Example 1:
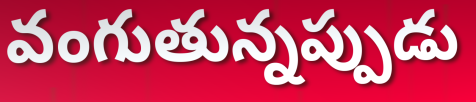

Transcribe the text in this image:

వంగుతున్నప్పుడు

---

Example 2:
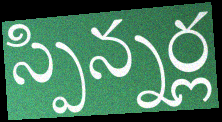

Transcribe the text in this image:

స్పిన్నర్ల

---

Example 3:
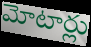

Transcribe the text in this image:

మోటార్లు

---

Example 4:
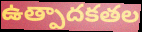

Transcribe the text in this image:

ఉత్పాదకతల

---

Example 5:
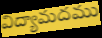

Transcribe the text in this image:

విద్యామదము